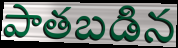
పాతబడిన